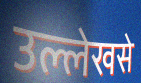
उल्लेखसे